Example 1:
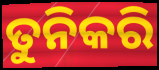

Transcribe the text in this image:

ତୁନିକରି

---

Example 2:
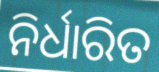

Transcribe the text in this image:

ନିର୍ଧାରିତ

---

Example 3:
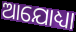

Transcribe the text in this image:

ଆଯୋଧ୍ୟା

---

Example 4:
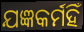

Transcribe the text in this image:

ଯଜ୍ଞକର୍ମହିଁ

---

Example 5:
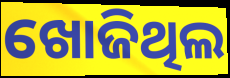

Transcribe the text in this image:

ଖୋଜିଥିଲ